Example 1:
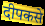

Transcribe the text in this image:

दीपकसे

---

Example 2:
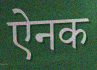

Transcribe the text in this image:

ऐनक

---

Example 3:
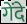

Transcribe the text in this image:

गेंदे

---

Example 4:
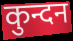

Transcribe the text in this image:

कुन्‍दन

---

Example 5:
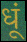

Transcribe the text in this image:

धूं